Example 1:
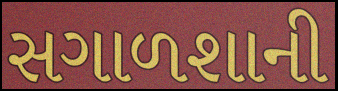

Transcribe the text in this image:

સગાળશાની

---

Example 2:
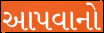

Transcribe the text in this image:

આપવાનો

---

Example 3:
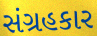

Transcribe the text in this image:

સંગ્રહકાર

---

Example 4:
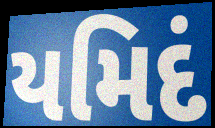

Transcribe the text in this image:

યમિદં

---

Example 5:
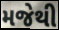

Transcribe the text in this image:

મજેથી